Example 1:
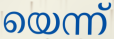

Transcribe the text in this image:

യെന്ന്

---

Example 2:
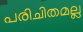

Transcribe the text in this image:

പരിചിതമല്ല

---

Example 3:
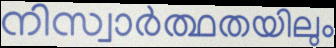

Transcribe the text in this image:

നിസ്വാർത്ഥതയിലും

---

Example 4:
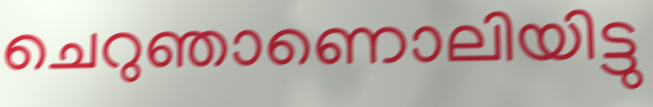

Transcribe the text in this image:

ചെറുഞാണൊലിയിട്ടു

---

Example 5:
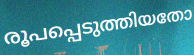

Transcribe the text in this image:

രൂപപ്പെടുത്തിയതോ